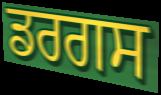
ਡਰਗਸ